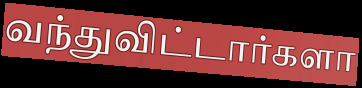
வந்துவிட்டார்களா